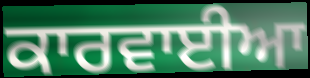
ਕਾਰਵਾਈਆ